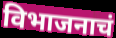
विभाजनाचं